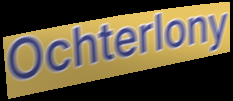
Ochterlony